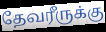
தேவரீருக்கு